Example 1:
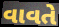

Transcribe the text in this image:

વાવતે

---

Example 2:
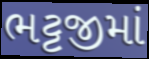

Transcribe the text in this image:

ભટ્ટજીમાં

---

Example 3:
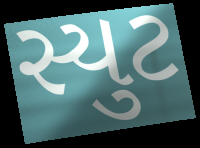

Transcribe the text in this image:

સ્યુટ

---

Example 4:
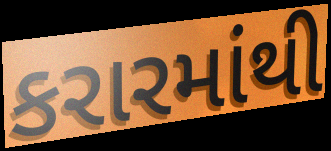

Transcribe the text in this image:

કરારમાંથી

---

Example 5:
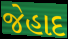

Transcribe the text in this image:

જેહાદ